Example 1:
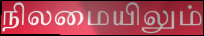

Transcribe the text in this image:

நிலமையிலும்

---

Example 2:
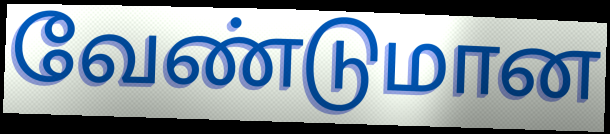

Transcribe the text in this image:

வேண்டுமான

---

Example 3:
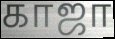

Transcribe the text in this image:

காஜா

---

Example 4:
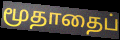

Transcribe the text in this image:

மூதாதைப்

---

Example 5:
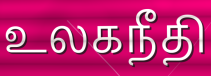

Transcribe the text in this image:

உலகநீதி